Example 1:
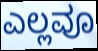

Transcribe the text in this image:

ಎಲ್ಲವೂ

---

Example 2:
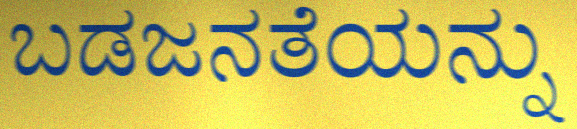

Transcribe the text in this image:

ಬಡಜನತೆಯನ್ನು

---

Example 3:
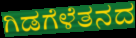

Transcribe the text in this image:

ಗಿಡಗೆಳೆತನದ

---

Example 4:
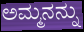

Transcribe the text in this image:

ಅಮ್ಮನನ್ನು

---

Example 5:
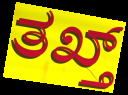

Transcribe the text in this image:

ತಖ್ತ್